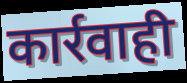
कार्रवाही